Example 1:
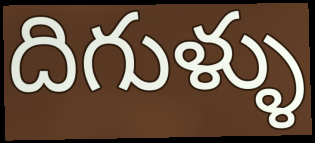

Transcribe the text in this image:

దిగుళ్ళు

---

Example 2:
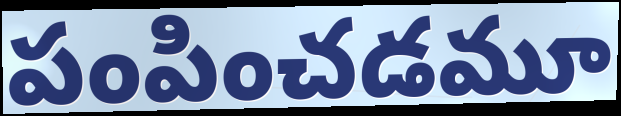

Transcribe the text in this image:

పంపించడమూ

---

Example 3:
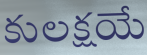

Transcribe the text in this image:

కులక్షయే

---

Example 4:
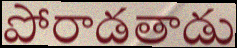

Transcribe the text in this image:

పోరాడతాడు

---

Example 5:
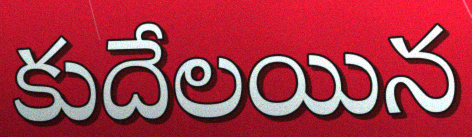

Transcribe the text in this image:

కుదేలయిన